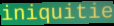
iniquitie